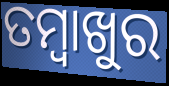
ତମ୍ବାଖୁର